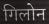
गिलोन